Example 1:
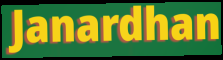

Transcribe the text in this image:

Janardhan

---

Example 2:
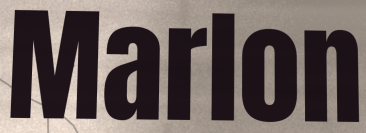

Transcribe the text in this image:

Marlon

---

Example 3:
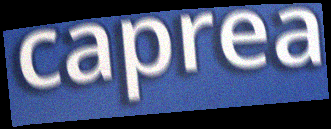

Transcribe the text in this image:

caprea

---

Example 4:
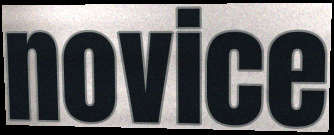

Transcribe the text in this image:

novice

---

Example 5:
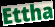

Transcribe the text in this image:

Ettha